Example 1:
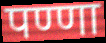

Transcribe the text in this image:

पण्णा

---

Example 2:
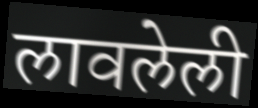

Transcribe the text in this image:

लावलेली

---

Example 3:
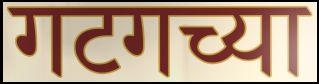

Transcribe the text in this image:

गटगच्या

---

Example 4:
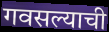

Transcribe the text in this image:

गवसल्याची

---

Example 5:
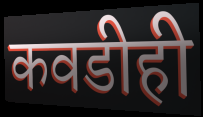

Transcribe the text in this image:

कवडीही